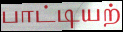
பாட்டியற்